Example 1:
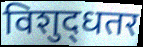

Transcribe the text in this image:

विशुद्धतर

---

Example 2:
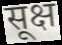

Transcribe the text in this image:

सूक्ष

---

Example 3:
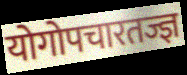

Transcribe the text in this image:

योगोपचारतज्ज्ञ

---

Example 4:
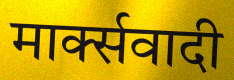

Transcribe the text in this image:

मार्क्‍सवादी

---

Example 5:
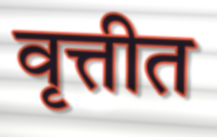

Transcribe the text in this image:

वृत्तीत